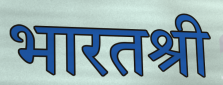
भारतश्री